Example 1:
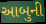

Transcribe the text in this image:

આબુની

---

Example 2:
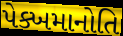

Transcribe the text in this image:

પેક્ખમાનોતિ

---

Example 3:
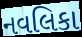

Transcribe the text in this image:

નવલિકા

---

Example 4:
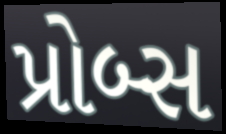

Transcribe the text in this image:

પ્રોબ્સ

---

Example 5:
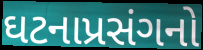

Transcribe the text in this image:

ઘટનાપ્રસંગનો